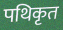
पथिकृत